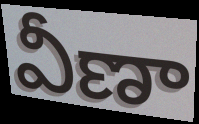
వీణా